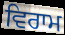
ਵਿਰਾਮ